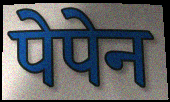
पेपेन